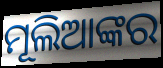
ମୂଲିଆଙ୍କର